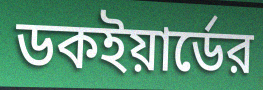
ডকইয়ার্ডের